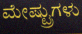
ಮೇಷ್ಟ್ರುಗಳು